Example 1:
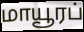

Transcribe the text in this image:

மாயூரப்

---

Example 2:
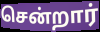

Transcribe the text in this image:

சென்றார்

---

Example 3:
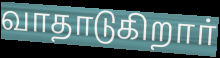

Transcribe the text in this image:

வாதாடுகிறார்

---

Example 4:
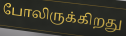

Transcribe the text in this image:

போலிருக்கிறது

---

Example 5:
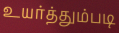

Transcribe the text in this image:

உயர்த்தும்படி